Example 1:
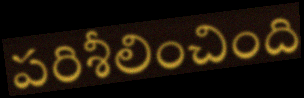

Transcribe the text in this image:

పరిశీలించింది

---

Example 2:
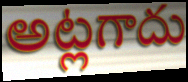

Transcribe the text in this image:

అట్లగాదు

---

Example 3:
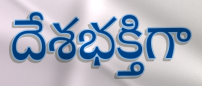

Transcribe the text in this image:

దేశభక్తిగా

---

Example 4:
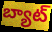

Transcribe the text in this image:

బ్యాట్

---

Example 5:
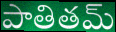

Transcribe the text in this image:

పాతితమ్